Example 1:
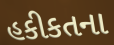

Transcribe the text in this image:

હકીકતના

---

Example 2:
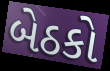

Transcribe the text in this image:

બેઠકો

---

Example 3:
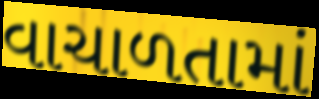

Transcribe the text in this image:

વાચાળતામાં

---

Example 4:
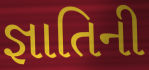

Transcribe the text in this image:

જ્ઞાતિની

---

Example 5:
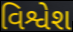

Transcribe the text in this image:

વિશ્વેશ